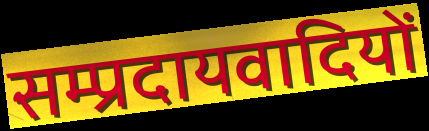
सम्प्रदायवादियों